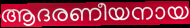
ആദരണീയനായ